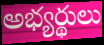
అభ్యర్థులు